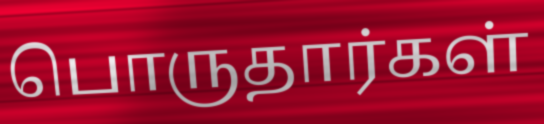
பொருதார்கள்